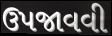
ઉપજાવવી